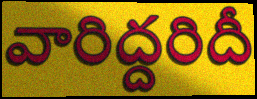
వారిద్దరిదీ